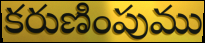
కరుణింపుము